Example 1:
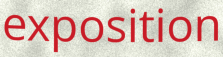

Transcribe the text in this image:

exposition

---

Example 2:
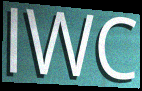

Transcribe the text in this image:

IWC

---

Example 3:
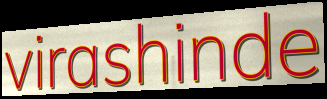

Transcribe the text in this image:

virashinde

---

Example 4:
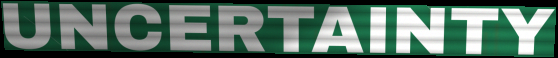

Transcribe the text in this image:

UNCERTAINTY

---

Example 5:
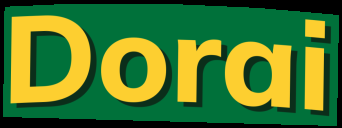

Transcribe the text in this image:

Dorai